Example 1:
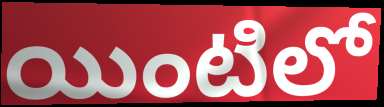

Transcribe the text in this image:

యింటిలో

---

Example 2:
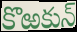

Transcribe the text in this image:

కొఱకున్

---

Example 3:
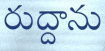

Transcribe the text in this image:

రుద్దాను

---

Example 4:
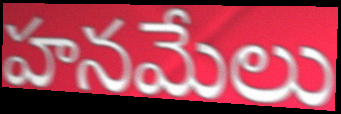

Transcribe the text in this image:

హనమేలు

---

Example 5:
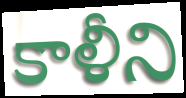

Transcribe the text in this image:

కాళీని